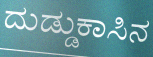
ದುಡ್ಡುಕಾಸಿನ